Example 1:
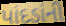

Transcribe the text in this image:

પાંદડાંની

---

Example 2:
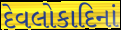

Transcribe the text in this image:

દેવલોકાદિનાં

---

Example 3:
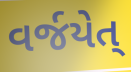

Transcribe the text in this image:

વર્જયેત્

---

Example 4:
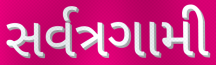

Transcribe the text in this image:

સર્વત્રગામી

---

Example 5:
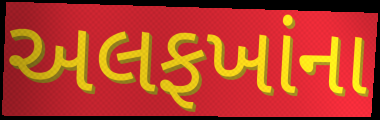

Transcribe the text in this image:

અલફખાંના